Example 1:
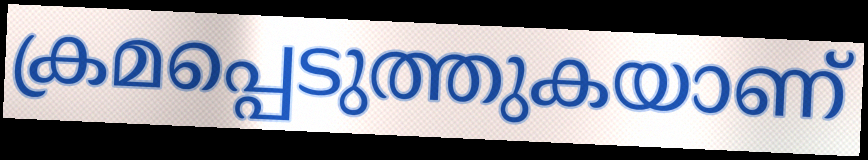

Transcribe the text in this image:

ക്രമപ്പെടുത്തുകയാണ്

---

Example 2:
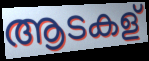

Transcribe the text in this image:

ആടകള്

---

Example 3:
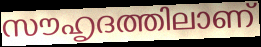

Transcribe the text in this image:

സൗഹൃദത്തിലാണ്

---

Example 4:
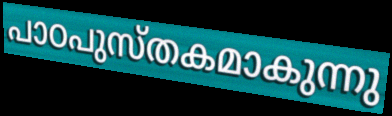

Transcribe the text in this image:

പാഠപുസ്തകമാകുന്നു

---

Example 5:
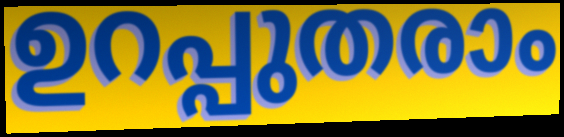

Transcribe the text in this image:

ഉറപ്പുതരാം